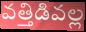
వత్తిడివల్ల